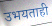
उभयताही